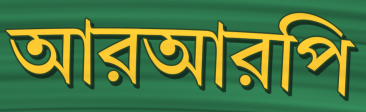
আরআরপি